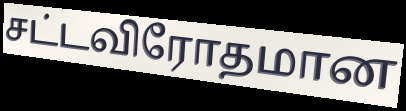
சட்டவிரோதமான